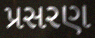
પ્રસરણ